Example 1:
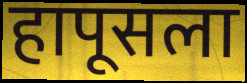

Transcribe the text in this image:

हापूसला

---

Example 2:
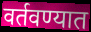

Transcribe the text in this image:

वर्तवण्यात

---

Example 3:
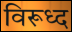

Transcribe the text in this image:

विरूध्द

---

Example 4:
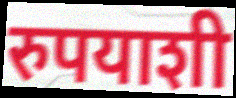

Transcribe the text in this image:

रुपयाशी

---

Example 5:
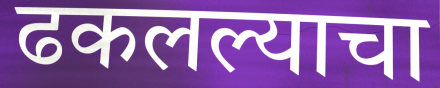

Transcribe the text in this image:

ढकलल्याचा